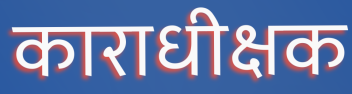
काराधीक्षक